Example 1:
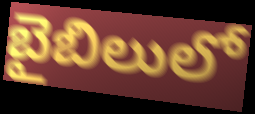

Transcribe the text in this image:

బైబిలులో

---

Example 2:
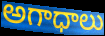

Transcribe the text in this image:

అగాధాలు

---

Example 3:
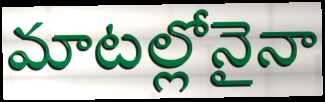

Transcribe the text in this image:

మాటల్లోనైనా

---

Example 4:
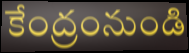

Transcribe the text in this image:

కేంద్రంనుండి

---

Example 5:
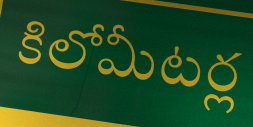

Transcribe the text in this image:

కిలోమీటర్ల